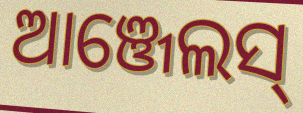
ଆଞ୍ଜେଲସ୍